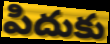
పిదుకు